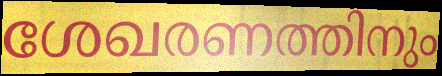
ശേഖരണത്തിനും